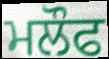
ਮਲੌਫ